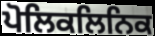
ਪੋਲਿਕਲਿਨਿਕ